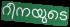
റീനയുടെ